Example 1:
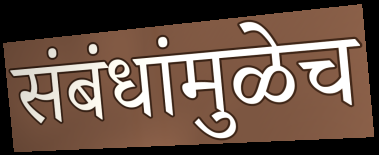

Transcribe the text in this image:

संबंधांमुळेच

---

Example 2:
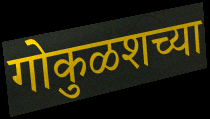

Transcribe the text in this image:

गोकुळशच्या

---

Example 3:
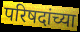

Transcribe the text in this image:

परिषदांच्या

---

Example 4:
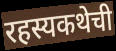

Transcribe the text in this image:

रहस्यकथेची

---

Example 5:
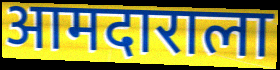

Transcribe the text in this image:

आमदाराला